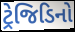
ટ્રેજિડિનો